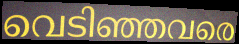
വെടിഞ്ഞവരെ